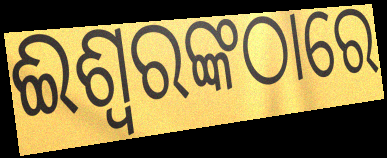
ଈଶ୍ୱରଙ୍କଠାରେ